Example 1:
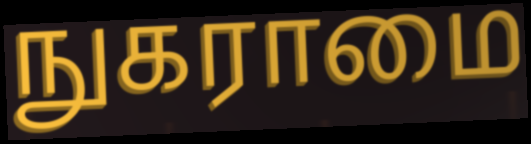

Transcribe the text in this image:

நுகராமை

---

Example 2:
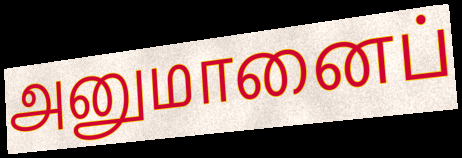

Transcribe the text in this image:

அனுமானைப்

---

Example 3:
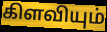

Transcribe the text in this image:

கிளவியும்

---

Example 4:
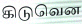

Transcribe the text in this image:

கிடுவென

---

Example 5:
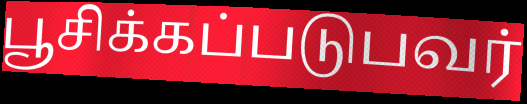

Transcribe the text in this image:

பூசிக்கப்படுபவர்